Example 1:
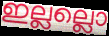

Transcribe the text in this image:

ഇല്ലല്ലൊ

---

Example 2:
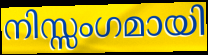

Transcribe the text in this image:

നിസ്സംഗമായി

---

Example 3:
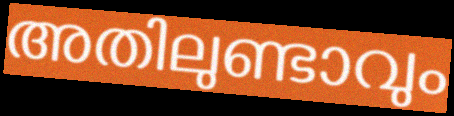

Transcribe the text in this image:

അതിലുണ്ടാവും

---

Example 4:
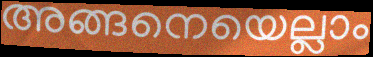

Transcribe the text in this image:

അങ്ങനെയെല്ലാം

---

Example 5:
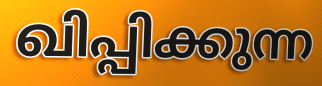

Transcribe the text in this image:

ഖിപ്പിക്കുന്ന